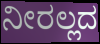
ನೀರಲ್ಲದ